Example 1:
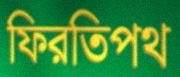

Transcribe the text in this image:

ফিরতিপথ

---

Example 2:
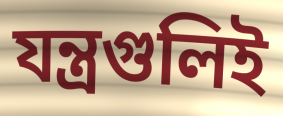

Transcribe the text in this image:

যন্ত্রগুলিই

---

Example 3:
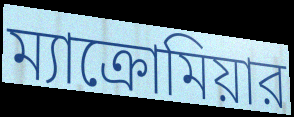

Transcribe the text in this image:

ম্যাক্রোমিয়ার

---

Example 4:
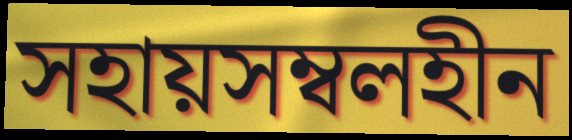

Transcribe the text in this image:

সহায়সম্বলহীন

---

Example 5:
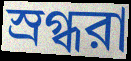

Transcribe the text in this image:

স্রগ্ধরা